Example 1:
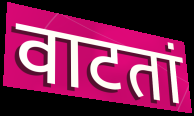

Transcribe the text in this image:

वाटतां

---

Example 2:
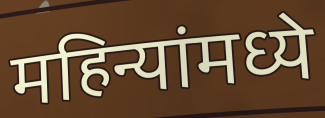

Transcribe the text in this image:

महिन्यांमध्ये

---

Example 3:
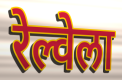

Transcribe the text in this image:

रेल्वेला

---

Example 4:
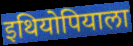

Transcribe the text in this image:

इथियोपियाला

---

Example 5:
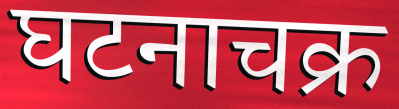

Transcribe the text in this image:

घटनाचक्र